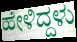
ಹೇಳಿದ್ದಳು